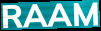
RAAM